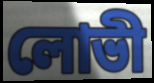
লোভী